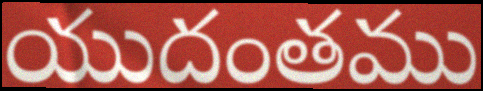
యుదంతము